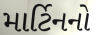
માર્ટિનનો